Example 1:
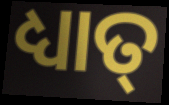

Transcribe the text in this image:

ଧ୍ୟାତ୍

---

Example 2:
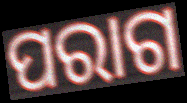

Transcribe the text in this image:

ପରାଗ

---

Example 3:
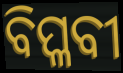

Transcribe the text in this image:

ବିପ୍ଳବୀ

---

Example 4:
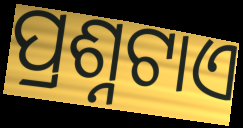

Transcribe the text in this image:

ପ୍ରଶ୍ନଟାଏ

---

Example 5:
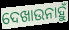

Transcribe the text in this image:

ଦେଖାଉନାହୁଁ